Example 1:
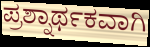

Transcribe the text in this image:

ಪ್ರಶ್ನಾರ್ಥಕವಾಗಿ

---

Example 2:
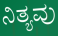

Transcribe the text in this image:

ನಿತ್ಯವು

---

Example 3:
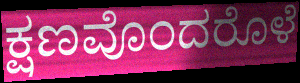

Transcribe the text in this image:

ಕ್ಷಣವೊಂದರೊಳೆ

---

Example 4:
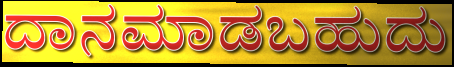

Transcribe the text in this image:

ದಾನಮಾಡಬಹುದು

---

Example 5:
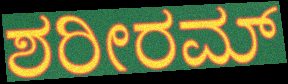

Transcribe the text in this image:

ಶರೀರಮ್